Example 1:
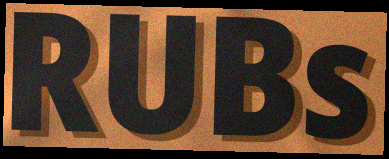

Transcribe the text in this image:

RUBs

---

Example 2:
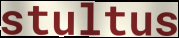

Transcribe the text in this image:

stultus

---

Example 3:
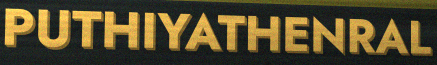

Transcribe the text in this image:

PUTHIYATHENRAL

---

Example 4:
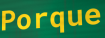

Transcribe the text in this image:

Porque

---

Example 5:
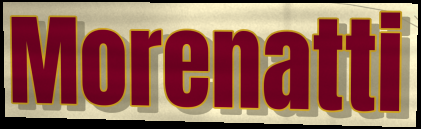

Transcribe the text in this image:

Morenatti